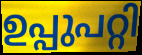
ഉപ്പുപറ്റി